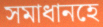
সমাধানহে